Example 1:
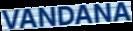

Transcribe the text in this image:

VANDANA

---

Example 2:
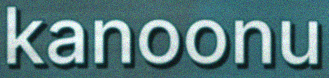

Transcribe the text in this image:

kanoonu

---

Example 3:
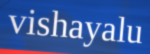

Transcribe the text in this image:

vishayalu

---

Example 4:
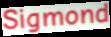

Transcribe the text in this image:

Sigmond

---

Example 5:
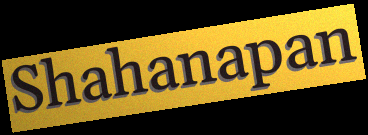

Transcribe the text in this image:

Shahanapan